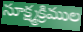
సూక్ష్మక్రిముల